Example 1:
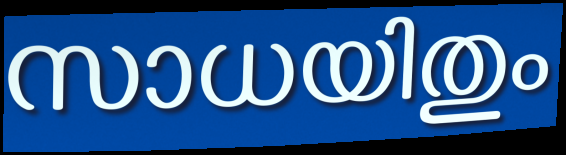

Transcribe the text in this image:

സാധയിതും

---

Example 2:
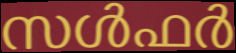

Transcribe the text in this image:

സൾഫർ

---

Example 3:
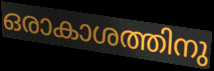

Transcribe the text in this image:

ഒരാകാശത്തിനു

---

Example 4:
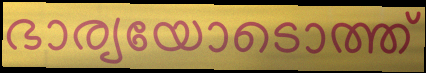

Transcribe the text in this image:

ഭാര്യയോടൊത്ത്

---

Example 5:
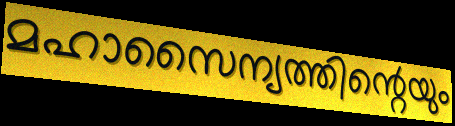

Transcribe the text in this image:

മഹാസൈന്യത്തിന്റെയും